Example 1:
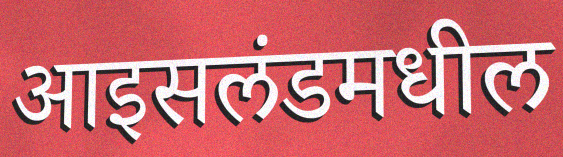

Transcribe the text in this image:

आइसलंडमधील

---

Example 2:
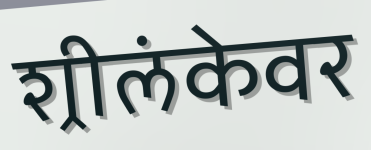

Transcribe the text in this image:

श्रीलंकेवर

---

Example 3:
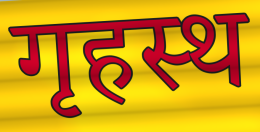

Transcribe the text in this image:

गृहस्थ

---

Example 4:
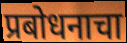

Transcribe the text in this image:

प्रबोधनाचा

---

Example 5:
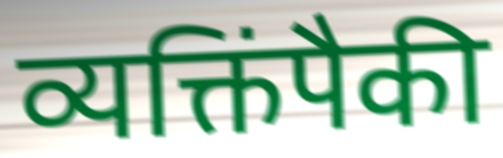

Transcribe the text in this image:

व्यक्तिंपैकी